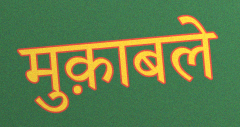
मुक़ाबले